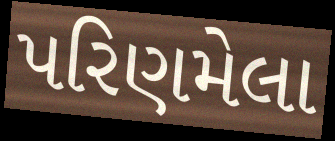
પરિણમેલા